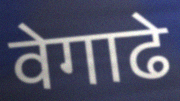
वेगाढे